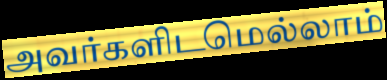
அவர்களிடமெல்லாம்